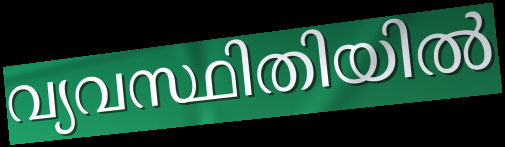
വ്യവസ്ഥിതിയിൽ